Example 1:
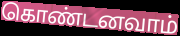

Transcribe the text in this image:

கொண்டனவாம்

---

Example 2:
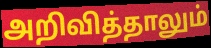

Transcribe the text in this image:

அறிவித்தாலும்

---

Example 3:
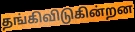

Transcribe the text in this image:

தங்கிவிடுகின்றன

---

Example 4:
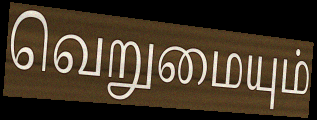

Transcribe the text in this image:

வெறுமையும்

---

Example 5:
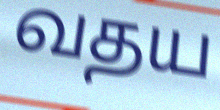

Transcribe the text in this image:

வதய